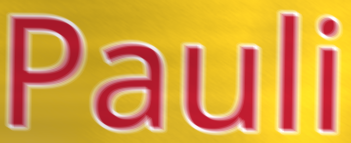
Pauli